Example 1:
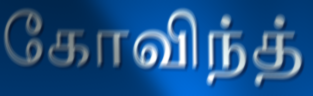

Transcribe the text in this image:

கோவிந்த்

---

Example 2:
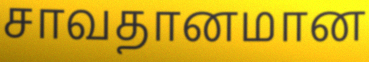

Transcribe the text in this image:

சாவதானமான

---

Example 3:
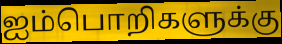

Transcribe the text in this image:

ஐம்பொறிகளுக்கு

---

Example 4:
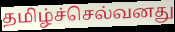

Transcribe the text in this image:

தமிழ்ச்செல்வனது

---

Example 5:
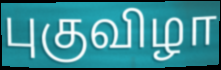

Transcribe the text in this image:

புகுவிழா